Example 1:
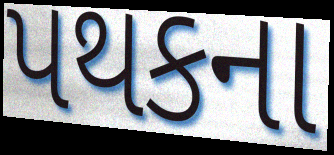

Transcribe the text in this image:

પથકના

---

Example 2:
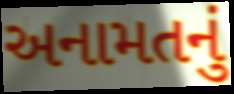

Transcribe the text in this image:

અનામતનું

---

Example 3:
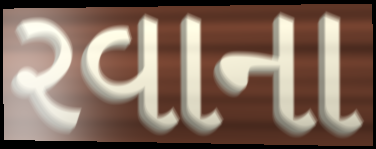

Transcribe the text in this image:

રવાના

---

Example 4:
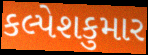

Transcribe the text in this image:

કલ્પેશકુમાર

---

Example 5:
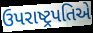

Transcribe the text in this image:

ઉપરાષ્ટ્રપતિએ